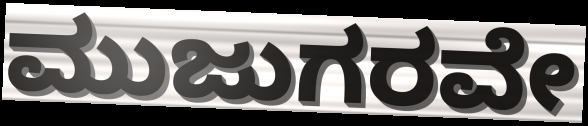
ಮುಜುಗರವೇ